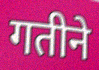
गतीने